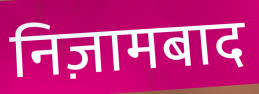
निज़ामबाद